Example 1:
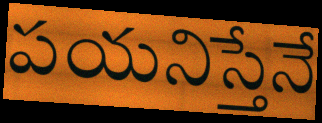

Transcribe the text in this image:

పయనిస్తేనే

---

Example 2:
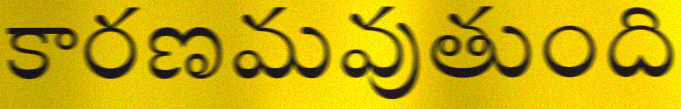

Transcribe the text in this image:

కారణమవుతుంది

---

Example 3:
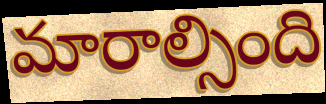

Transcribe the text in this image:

మారాల్సింది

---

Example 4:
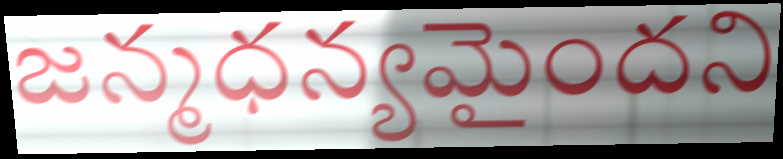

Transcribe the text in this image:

జన్మధన్యమైందని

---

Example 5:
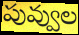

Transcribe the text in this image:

పువ్వుల